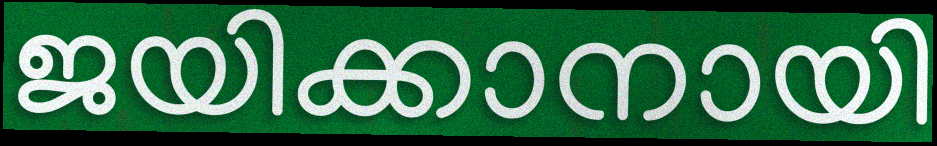
ജയിക്കാനായി